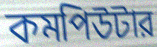
কমপিউটার